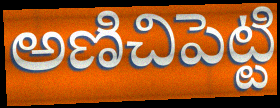
అణిచిపెట్టి